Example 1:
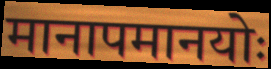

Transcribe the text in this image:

मानापमानयोः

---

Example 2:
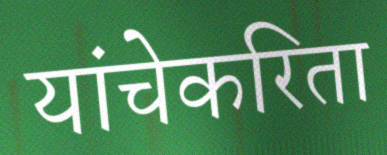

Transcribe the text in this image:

यांचेकरिता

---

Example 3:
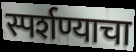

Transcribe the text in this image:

स्पर्शण्याचा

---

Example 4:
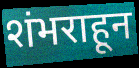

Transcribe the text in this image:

शंभराहून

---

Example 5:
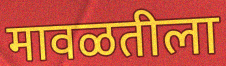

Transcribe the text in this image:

मावळतीला